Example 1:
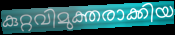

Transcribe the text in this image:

കുറ്റവിമുക്തരാക്കിയ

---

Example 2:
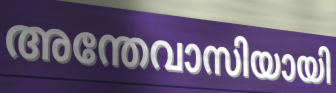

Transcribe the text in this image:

അന്തേവാസിയായി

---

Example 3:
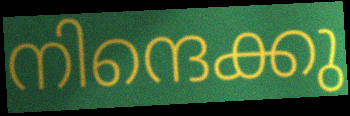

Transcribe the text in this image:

നിന്ദെക്കു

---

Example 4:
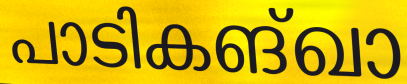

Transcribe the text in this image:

പാടികങ്ഖാ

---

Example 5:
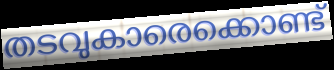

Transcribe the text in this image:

തടവുകാരെക്കൊണ്ട്